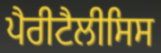
ਪੈਰੀਟੈਲੀਸਿਸ